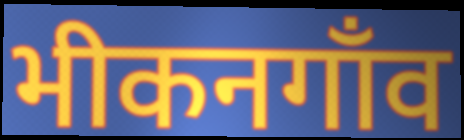
भीकनगाँव